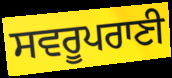
ਸਵਰੂਪਰਾਣੀ